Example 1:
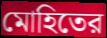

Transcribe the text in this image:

মোহিতের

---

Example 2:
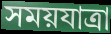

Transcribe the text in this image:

সময়যাত্রা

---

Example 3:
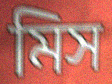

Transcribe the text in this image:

মিস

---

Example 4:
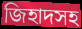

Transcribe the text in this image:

জিহাদসহ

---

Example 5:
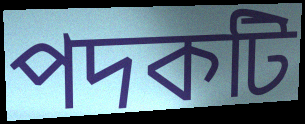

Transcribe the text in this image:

পদকটি